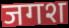
जगश